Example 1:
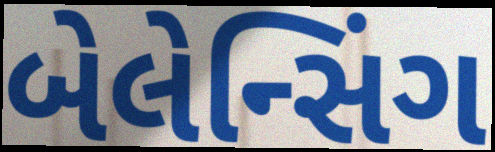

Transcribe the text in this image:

બેલેન્સિંગ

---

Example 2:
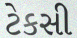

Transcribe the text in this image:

ટેકસી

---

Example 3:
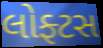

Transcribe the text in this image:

લોફ્ટસ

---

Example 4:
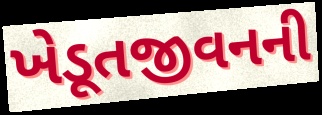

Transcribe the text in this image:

ખેડૂતજીવનની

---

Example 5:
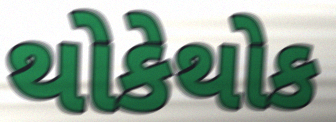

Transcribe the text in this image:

થોકેથોક